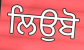
ਲਿਉਬੋ